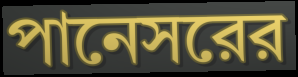
পানেসরের